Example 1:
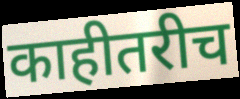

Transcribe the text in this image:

काहीतरीच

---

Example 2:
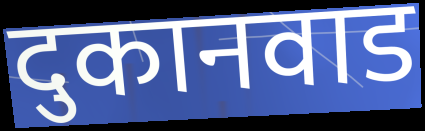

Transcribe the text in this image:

दुकानवाड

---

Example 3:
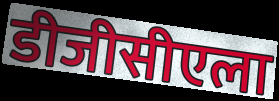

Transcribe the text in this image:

डीजीसीएला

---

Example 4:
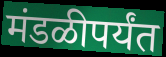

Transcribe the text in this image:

मंडळीपर्यंत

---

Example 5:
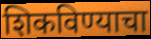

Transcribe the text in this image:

शिकविण्याचा